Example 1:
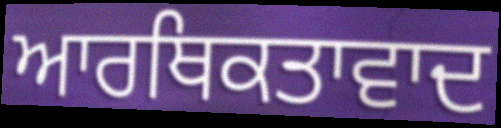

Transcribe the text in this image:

ਆਰਥਿਕਤਾਵਾਦ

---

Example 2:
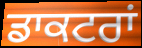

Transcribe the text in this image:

ਡਾਕਟਰਾਂ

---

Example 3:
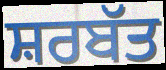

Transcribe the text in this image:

ਸ਼ਰਬੱਤ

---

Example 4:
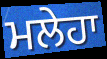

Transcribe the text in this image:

ਮਲੇਹਾ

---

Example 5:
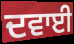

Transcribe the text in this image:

ਦਵਾਈ